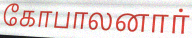
கோபாலனார்